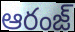
ఆరంజ్